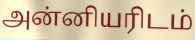
அன்னியரிடம்